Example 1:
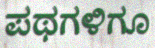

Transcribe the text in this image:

ಪಥಗಳಿಗೂ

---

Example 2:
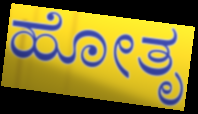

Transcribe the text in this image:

ಹೋತೃ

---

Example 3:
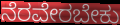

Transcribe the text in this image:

ನೆರವೇರಬೇಕು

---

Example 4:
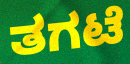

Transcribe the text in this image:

ತಗಟೆ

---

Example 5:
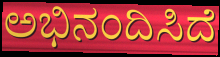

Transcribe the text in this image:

ಅಭಿನಂದಿಸಿದೆ